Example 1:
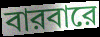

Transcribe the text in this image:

বারবারে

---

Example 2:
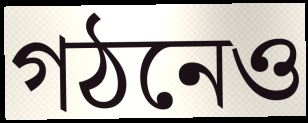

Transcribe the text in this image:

গঠনেও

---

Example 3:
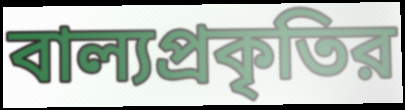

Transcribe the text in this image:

বাল্যপ্রকৃতির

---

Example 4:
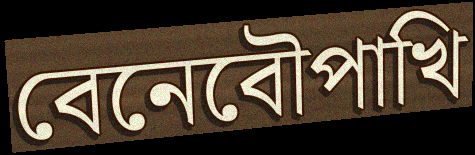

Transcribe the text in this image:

বেনেবৌপাখি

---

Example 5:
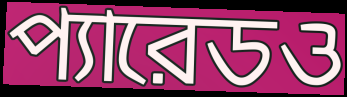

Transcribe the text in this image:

প্যারেডও